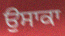
ਉਸਾਕਾ